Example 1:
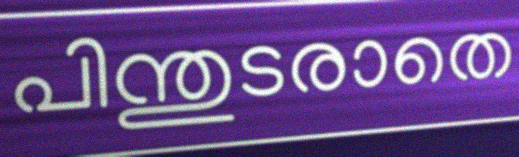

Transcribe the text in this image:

പിന്തുടരാതെ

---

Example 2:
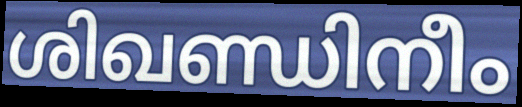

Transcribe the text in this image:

ശിഖണ്ഡിനീം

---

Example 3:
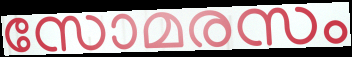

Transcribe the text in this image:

സോമരസം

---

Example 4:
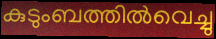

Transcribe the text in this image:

കുടുംബത്തിൽവെച്ചു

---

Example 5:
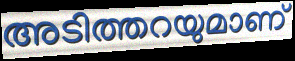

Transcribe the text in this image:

അടിത്തറയുമാണ്